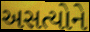
અસત્યોને